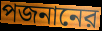
পজনানের